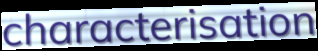
characterisation